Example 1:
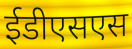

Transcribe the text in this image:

ईडीएसएस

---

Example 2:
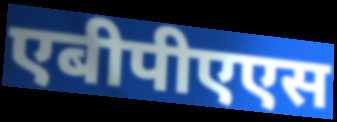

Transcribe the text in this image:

एबीपीएएस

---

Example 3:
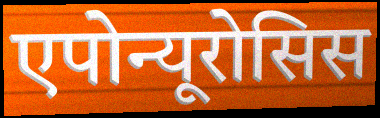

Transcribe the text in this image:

एपोन्यूरोसिस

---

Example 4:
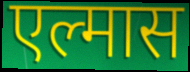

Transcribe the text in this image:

एल्मास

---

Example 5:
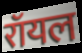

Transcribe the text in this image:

रॉयल